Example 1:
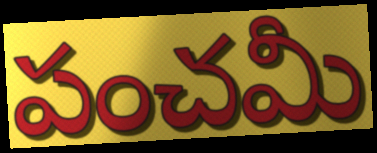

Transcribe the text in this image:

పంచమీ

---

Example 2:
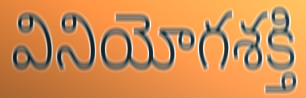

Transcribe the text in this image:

వినియోగశక్తి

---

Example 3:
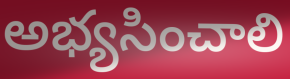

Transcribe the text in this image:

అభ్యసించాలి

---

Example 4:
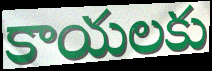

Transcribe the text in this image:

కాయలకు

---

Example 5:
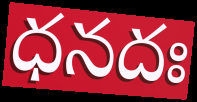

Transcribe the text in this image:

ధనదః